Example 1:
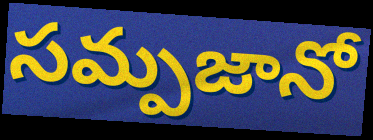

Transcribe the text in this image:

సమ్పజానో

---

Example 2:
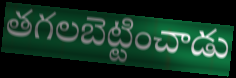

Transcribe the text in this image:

తగలబెట్టించాడు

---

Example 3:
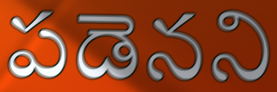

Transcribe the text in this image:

పడెనని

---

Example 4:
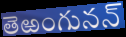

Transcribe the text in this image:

తెఱంగునన్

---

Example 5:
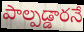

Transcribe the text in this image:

పాల్పడ్డారనే